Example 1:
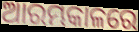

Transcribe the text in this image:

ଆରମ୍ଭକାଳରେ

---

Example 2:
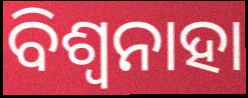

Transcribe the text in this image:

ବିଶ୍ଵନାହା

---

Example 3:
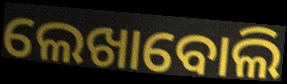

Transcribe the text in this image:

ଲେଖାବୋଲି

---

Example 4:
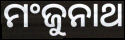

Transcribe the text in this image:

ମଂଜୁନାଥ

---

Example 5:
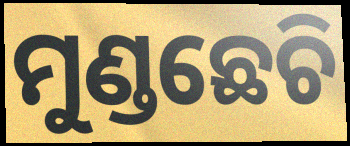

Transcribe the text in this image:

ମୁଣ୍ଡଛେଚି